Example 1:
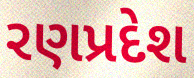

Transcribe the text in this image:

રણપ્રદેશ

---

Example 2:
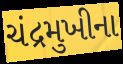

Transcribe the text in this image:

ચંદ્રમુખીના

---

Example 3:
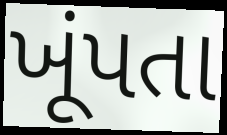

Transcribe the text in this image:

ખૂંપતા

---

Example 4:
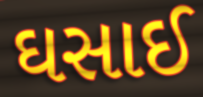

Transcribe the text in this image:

ઘસાઈ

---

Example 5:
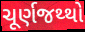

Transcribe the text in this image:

ચૂર્ણજથ્થો